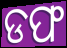
ଡଫ